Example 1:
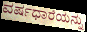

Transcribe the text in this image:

ವರ್ಷಧಾರೆಯನ್ನು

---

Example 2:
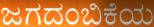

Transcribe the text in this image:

ಜಗದಂಬಿಕೆಯ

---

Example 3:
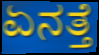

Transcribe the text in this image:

ಏನತ್ತೆ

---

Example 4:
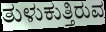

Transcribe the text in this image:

ತುಳುಕುತ್ತಿರುವ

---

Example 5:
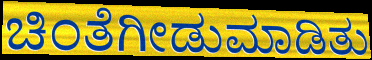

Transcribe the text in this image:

ಚಿಂತೆಗೀಡುಮಾಡಿತು